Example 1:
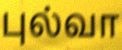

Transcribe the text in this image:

புல்வா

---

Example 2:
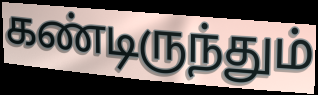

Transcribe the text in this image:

கண்டிருந்தும்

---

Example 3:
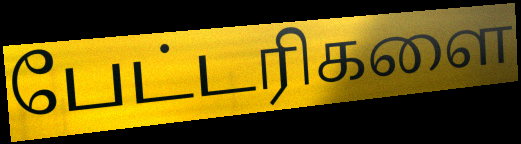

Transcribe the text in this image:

பேட்டரிகளை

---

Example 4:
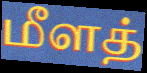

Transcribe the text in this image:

மீளத்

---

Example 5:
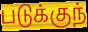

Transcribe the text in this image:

படுக்குந்